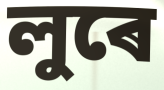
লুৰে